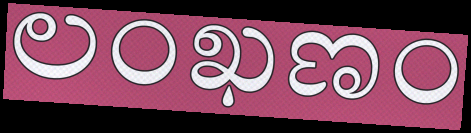
లంఖణం